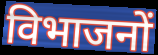
विभाजनों